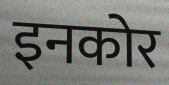
इनकोर